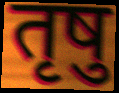
तृषु